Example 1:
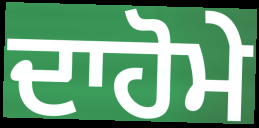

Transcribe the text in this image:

ਦਾਹੋਮੇ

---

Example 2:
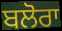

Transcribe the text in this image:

ਬਲੋਰਾ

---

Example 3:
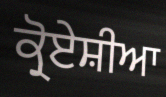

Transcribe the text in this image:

ਕ੍ਰੋਏਸ਼ੀਆ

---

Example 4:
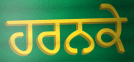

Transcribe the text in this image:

ਹਰਨਕੇ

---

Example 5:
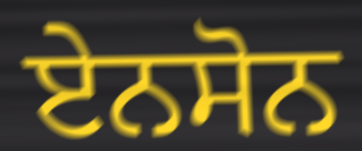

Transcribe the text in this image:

ਏਨਸੋਨ